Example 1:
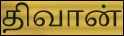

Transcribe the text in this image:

திவான்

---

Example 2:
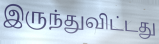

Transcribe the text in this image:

இருந்துவிட்டது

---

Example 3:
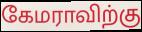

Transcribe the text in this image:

கேமராவிற்கு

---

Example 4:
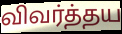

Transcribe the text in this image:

விவர்த்தய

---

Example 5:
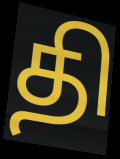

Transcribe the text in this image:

தி